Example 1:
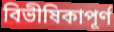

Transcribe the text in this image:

বিভীষিকাপূর্ণ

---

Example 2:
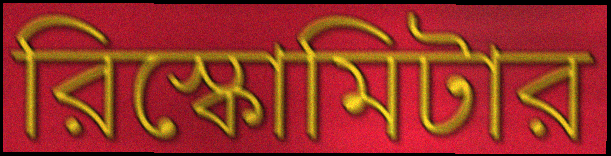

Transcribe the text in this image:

রিস্কোমিটার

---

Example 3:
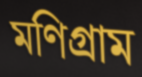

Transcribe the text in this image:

মণিগ্রাম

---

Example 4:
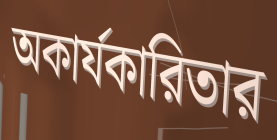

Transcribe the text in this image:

অকার্যকারিতার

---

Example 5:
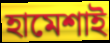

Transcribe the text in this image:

হামেশাই